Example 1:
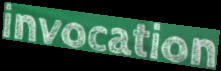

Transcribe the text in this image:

invocation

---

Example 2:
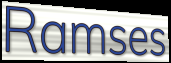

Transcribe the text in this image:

Ramses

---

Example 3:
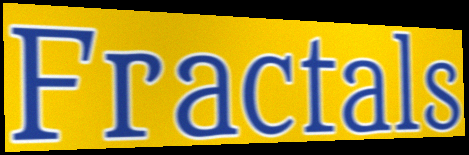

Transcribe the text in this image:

Fractals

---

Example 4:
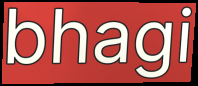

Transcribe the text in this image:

bhagi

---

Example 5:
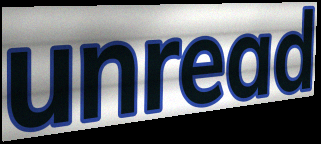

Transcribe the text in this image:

unread